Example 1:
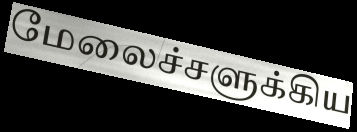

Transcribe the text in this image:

மேலைச்சளுக்கிய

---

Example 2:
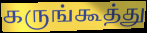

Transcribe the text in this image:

கருங்கூத்து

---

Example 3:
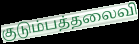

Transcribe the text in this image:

குடும்பத்தலைவி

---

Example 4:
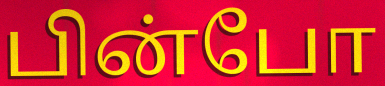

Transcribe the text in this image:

பின்போ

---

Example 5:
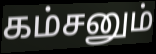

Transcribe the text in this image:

கம்சனும்